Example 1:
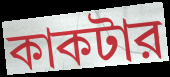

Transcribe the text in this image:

কাকটার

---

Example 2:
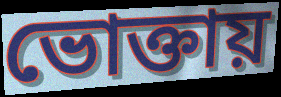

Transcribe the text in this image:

ভোক্তায়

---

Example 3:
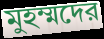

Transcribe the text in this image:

মুহম্মদের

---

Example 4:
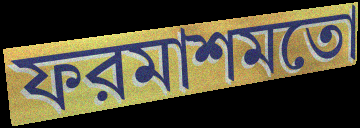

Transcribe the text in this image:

ফরমাশমতো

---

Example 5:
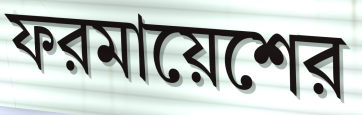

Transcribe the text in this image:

ফরমায়েশের